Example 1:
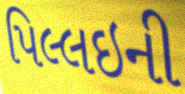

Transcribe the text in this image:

પિલ્લઇની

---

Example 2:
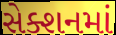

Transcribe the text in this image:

સેક્શનમાં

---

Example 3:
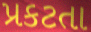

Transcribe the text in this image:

પ્રકટતા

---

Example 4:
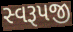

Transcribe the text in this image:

સ્વરૂપજી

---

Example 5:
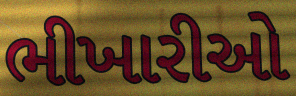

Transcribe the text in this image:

ભીખારીઓ